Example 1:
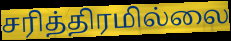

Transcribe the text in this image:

சரித்திரமில்லை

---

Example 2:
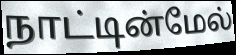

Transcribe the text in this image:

நாட்டின்மேல்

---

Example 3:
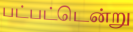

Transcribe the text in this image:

பட்பட்டென்று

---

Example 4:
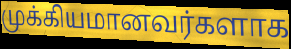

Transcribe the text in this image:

முக்கியமானவர்களாக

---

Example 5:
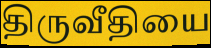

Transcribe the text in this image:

திருவீதியை